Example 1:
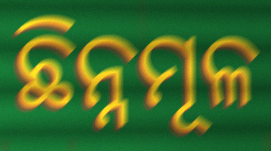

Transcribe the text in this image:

ଛିନ୍ନମୂଳ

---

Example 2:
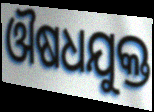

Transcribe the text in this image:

ଔଷଧଯୁକ୍ତ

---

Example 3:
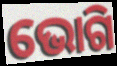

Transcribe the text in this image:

ଭୋଗି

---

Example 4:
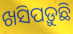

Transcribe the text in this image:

ଖସିପଡ଼ୁଛି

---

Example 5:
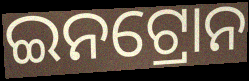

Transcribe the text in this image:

ଇନଟ୍ରୋନ